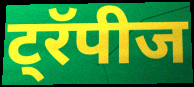
ट्रॅपीज